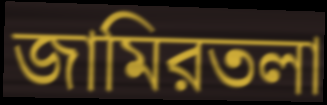
জামিরতলা